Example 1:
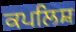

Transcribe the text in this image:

ਕਪਲਿਸ਼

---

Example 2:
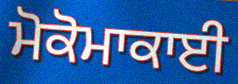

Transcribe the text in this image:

ਮੋਕੋਮਾਕਾਈ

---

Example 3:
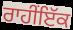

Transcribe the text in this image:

ਰਾਹੀਂਇੱਕ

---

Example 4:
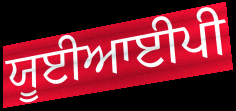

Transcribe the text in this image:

ਯੂਈਆਈਪੀ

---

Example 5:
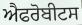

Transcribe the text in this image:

ਐਫਰੋਬੀਟਸ